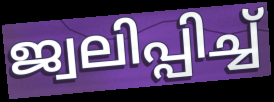
ജ്വലിപ്പിച്ച്